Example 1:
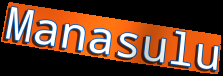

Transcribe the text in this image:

Manasulu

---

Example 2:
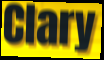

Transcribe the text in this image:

Clary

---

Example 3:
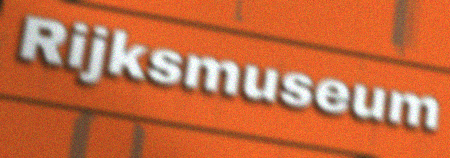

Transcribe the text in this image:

Rijksmuseum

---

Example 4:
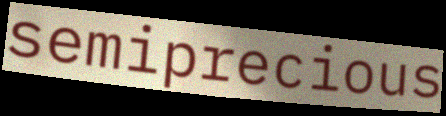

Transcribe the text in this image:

semiprecious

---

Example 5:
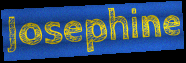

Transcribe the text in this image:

Josephine